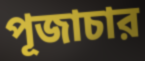
পূজাচার